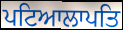
ਪਟਿਆਲਾਪਤਿ